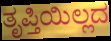
ತೃಪ್ತಿಯಿಲ್ಲದ